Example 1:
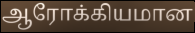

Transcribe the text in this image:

ஆரோக்கியமான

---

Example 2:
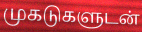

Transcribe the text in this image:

முகடுகளுடன்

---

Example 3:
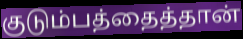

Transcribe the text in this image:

குடும்பத்தைத்தான்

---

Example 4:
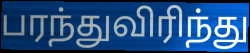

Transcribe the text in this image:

பரந்துவிரிந்து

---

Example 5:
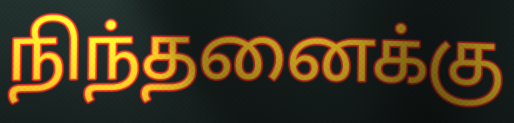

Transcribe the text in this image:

நிந்தனைக்கு